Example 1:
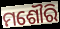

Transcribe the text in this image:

ମଶୌରି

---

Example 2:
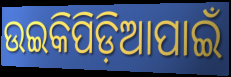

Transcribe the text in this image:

ଉଇକିପିଡ଼ିଆପାଇଁ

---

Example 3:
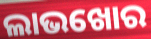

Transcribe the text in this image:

ଲାଭଖୋର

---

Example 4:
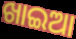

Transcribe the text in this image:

ଖାଇଆ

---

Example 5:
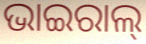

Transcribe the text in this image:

ଭାଇରାଲ୍